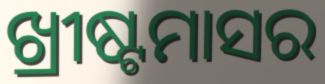
ଖ୍ରୀଷ୍ଟମାସର